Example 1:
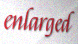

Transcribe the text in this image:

enlarged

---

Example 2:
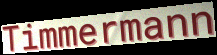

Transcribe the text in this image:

Timmermann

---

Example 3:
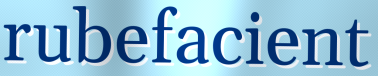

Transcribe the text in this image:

rubefacient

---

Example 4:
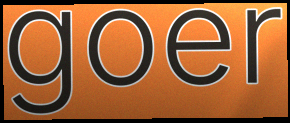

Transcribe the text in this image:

goer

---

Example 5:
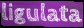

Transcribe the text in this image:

ligulata